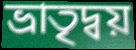
ভ্রাতৃদ্বয়